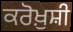
ਕਰੋਖ਼ੁਸ਼ੀ